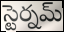
స్టెర్నమ్